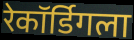
रेकॉर्डिगला